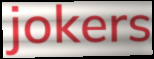
jokers